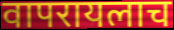
वापरायलाच